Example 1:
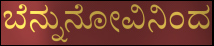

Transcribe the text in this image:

ಬೆನ್ನುನೋವಿನಿಂದ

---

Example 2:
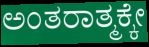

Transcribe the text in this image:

ಅಂತರಾತ್ಮಕ್ಕೇ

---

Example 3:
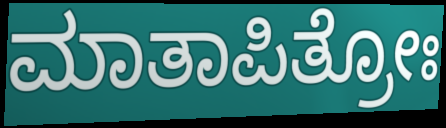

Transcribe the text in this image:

ಮಾತಾಪಿತ್ರೋಃ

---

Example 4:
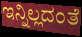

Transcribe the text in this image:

ಇನ್ನಿಲ್ಲದಂತೆ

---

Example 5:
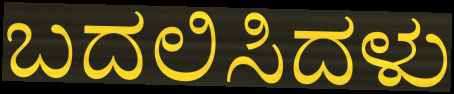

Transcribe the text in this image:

ಬದಲಿಸಿದಳು